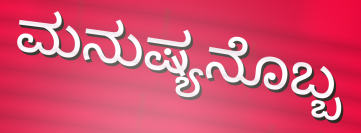
ಮನುಷ್ಯನೊಬ್ಬ